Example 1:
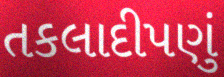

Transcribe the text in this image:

તકલાદીપણું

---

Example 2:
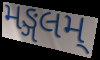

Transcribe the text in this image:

મઙ્ગલમ્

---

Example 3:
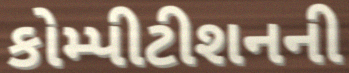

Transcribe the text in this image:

કોમ્પીટીશનની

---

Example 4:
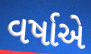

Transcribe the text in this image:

વર્ષાએ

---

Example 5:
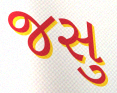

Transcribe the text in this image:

જસુ